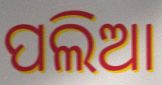
ପଲିଆ